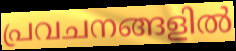
പ്രവചനങ്ങളിൽ